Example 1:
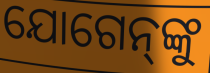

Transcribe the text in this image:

ଯୋଗେନ୍‌ଙ୍କୁ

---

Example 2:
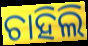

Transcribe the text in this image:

ଚାହିଲି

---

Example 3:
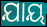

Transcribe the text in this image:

ଯାୟ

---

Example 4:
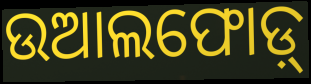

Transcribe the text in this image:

ଉଆଲଫୋଡ଼୍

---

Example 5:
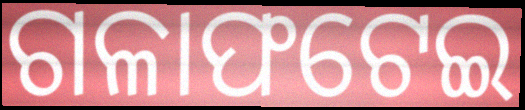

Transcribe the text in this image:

ଗଳାଫଟେଇ